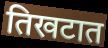
तिखटात